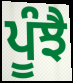
ਪੂੰਝੈ